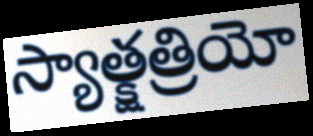
స్యాత్క్షత్రియో